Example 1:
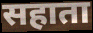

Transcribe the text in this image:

सहाता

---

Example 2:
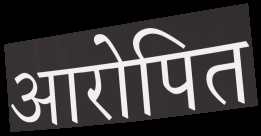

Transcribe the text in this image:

आरोपित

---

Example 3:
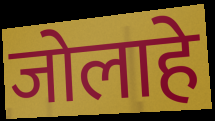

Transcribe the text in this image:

जोलाहे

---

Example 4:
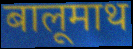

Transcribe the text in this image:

बालूमाथ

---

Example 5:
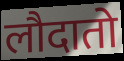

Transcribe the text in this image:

लौदातो